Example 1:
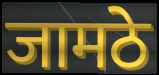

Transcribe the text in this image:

जामठे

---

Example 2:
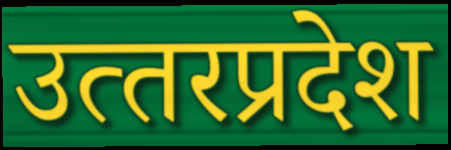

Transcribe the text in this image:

उत्‍तरप्रदेश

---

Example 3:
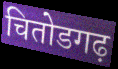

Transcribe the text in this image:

चितोडगढ़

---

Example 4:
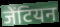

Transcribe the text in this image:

जेंटियन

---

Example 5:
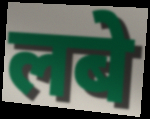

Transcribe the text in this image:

लबे